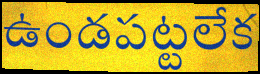
ఉండపట్టలేక